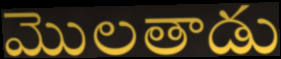
మొలతాడు